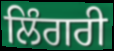
ਲਿੰਗਰੀ